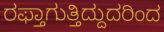
ರಫ್ತಾಗುತ್ತಿದ್ದುದರಿಂದ